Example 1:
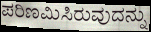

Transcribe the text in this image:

ಪರಿಣಮಿಸಿರುವುದನ್ನು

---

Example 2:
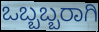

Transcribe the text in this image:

ಒಬ್ಬಬ್ಬರಾಗಿ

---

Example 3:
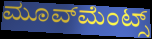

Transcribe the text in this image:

ಮೂವ್‌ಮೆಂಟ್ಸ್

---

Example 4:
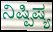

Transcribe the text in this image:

ನಿಷ್ಪಿಷ್ಯ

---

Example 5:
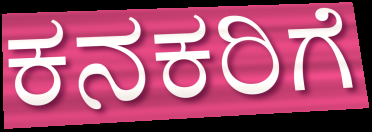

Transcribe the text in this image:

ಕನಕರಿಗೆ